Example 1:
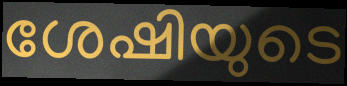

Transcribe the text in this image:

ശേഷിയുടെ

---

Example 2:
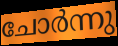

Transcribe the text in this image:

ചോർന്നു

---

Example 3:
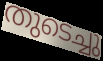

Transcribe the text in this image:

തുടെച്ചു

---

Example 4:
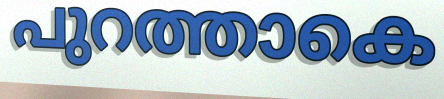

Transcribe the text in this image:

പുറത്താകെ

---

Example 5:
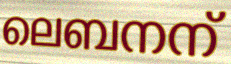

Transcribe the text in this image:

ലെബനന്